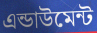
এন্ডাউমেন্ট